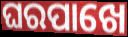
ଘରପାଖେ